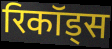
रिकॉड्स